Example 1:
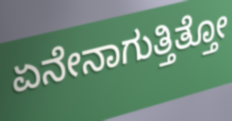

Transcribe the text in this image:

ಏನೇನಾಗುತ್ತಿತ್ತೋ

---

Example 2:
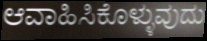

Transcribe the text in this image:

ಆವಾಹಿಸಿಕೊಳ್ಳುವುದು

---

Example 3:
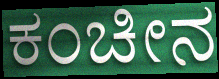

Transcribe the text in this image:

ಕಂಚೀನ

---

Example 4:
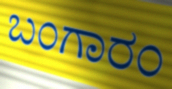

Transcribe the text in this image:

ಬಂಗಾರಂ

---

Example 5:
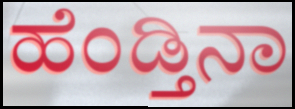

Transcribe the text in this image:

ಹೆಂಡ್ತಿನಾ